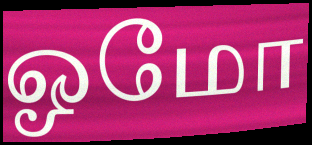
ஓமோ